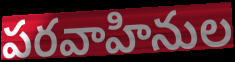
పరవాహినుల